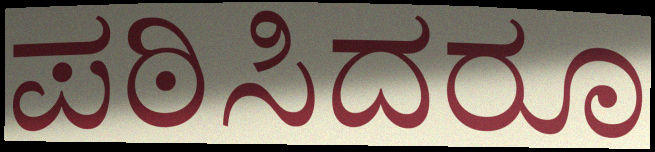
ಪಠಿಸಿದರೂ